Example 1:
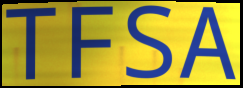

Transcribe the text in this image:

TFSA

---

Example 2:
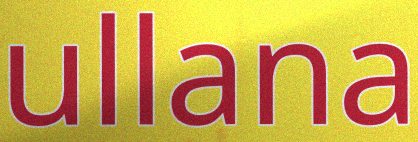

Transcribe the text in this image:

ullana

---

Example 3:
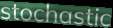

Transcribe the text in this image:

stochastic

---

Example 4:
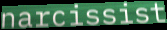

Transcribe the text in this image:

narcissist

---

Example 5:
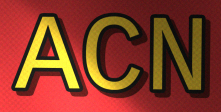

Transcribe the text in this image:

ACN